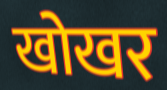
खोखर